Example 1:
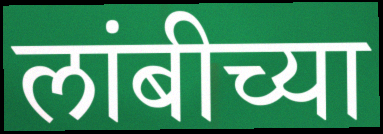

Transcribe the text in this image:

लांबीच्या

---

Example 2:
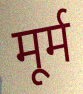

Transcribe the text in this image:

मूर्म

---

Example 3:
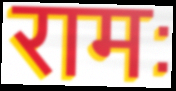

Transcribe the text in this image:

रामः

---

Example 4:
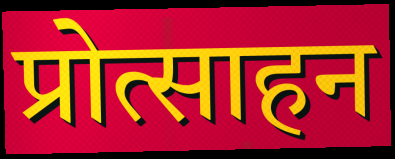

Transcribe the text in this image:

प्रोत्साहन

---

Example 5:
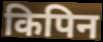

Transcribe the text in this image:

किपिन